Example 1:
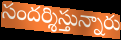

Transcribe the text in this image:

సందర్శిస్తున్నారు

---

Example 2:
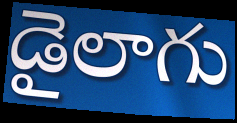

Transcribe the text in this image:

డైలాగు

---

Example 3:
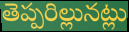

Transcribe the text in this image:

తెప్పరిల్లునట్లు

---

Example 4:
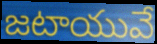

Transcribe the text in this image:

జటాయువే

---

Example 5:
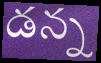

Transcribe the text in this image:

డన్న